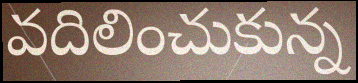
వదిలించుకున్న